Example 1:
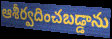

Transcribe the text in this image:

ఆశీర్వదించబడ్డాను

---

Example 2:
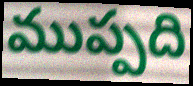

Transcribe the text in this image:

ముప్పది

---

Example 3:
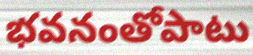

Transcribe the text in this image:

భవనంతోపాటు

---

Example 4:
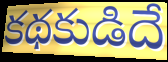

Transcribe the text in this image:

కథకుడిదే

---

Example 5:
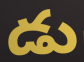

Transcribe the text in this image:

డు